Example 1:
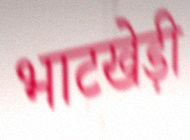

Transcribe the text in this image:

भाटखेड़ी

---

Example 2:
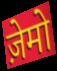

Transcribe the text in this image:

ज़ेमो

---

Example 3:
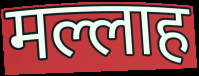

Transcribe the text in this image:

मल्लाह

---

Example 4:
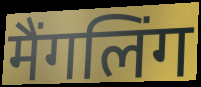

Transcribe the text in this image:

मैंगलिंग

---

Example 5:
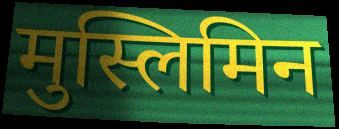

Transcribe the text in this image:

मुस्लिमिन